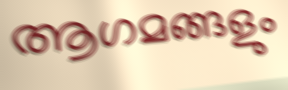
ആഗമങ്ങളും